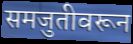
समजुतीवरून